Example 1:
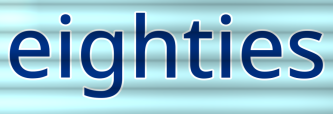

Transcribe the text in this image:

eighties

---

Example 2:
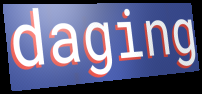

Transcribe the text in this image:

daging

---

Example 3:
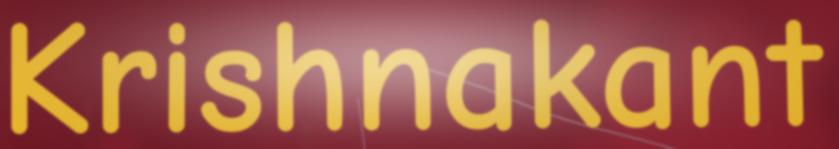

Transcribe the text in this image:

Krishnakant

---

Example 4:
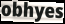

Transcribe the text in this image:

obhyes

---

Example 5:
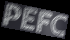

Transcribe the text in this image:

PEFC